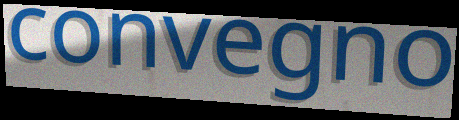
convegno